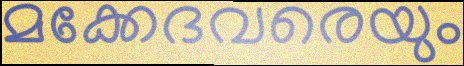
മക്കേദവരെയും